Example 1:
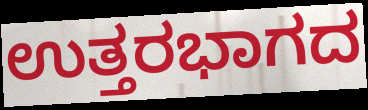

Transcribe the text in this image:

ಉತ್ತರಭಾಗದ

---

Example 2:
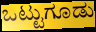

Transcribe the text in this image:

ಒಟ್ಟುಗೂಡು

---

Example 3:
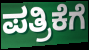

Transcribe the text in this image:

ಪತ್ರಿಕೆಗೆ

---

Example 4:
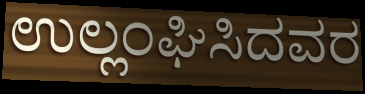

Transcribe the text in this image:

ಉಲ್ಲಂಘಿಸಿದವರ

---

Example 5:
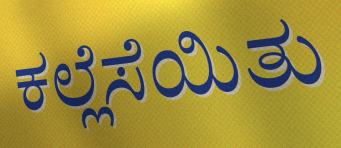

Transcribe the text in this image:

ಕಲ್ಲೆಸೆಯಿತು